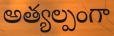
అత్యల్పంగా